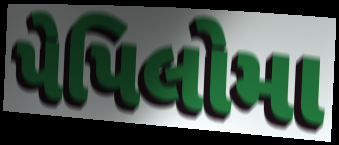
પેપિલોમા